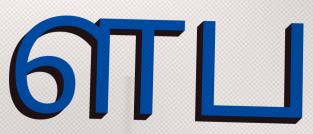
ளப